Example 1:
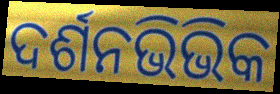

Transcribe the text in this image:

ଦର୍ଶନଭିଭିକ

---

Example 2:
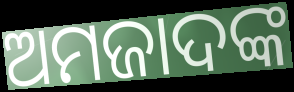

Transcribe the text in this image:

ଅମଜାଦଙ୍କ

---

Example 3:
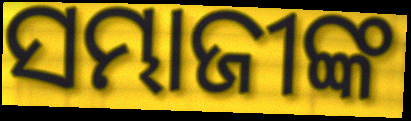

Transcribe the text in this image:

ସମ୍ଭାଜୀଙ୍କ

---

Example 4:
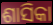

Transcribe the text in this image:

ଶାସିକା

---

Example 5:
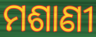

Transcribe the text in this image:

ମଶାଣୀ